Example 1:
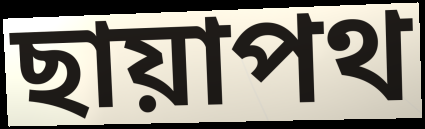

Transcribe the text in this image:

ছায়াপথ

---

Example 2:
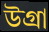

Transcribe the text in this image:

উগ্রা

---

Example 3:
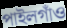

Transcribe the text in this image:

পাইলগাঁও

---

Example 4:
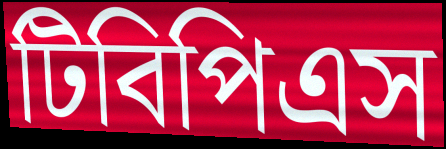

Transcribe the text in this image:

টিবিপিএস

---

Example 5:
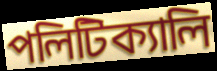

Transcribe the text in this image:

পলিটিক্যালি